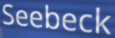
Seebeck